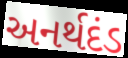
અનર્થદંડ